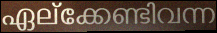
ഏല്ക്കേണ്ടിവന്ന